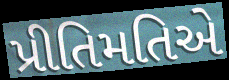
પ્રીતિમતિએ